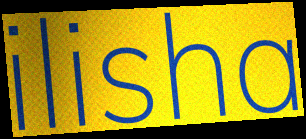
ilisha